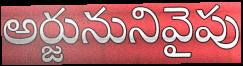
అర్జునునివైపు